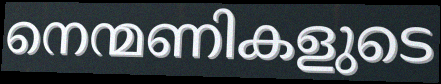
നെന്മണികളുടെ